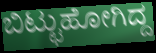
ಬಿಟ್ಟುಹೋಗಿದ್ದ